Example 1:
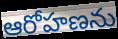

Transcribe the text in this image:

ఆరోహణను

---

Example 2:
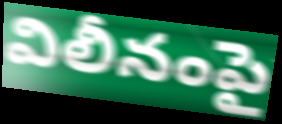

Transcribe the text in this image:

విలీనంపై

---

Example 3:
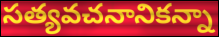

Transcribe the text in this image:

సత్యవచనానికన్నా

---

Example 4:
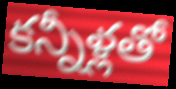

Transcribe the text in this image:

కన్నీళ్లతో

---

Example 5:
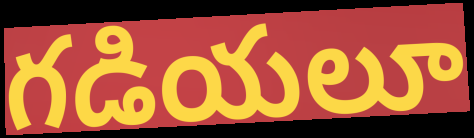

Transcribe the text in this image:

గడియలూ